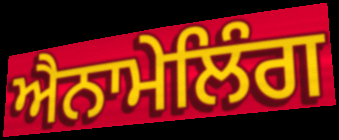
ਐਨਾਮੇਲਿੰਗ